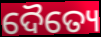
ଦୈତ୍ୟେ